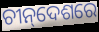
ଚୀନ୍‌ଦେଶରେ